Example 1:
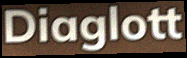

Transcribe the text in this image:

Diaglott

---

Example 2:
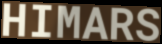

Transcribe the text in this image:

HIMARS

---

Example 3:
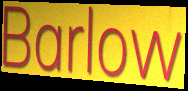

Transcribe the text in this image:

Barlow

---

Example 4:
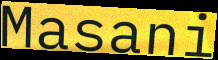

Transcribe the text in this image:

Masani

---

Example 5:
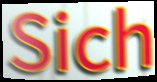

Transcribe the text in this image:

Sich